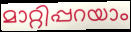
മാറ്റിപ്പറയാം